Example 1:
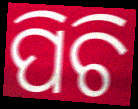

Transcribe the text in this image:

ପିଚି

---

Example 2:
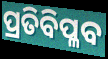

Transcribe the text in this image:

ପ୍ରତିବିପ୍ଳବ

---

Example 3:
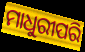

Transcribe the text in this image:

ମାଧୁରୀପରି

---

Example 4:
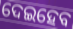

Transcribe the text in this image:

ଦେଇହେବ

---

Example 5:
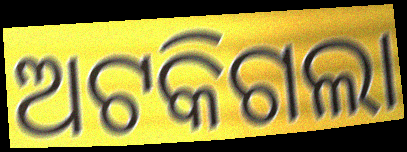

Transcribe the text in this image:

ଅଟକିଗଲା